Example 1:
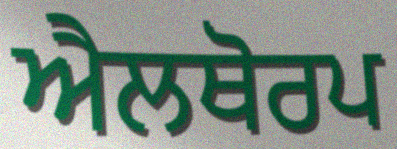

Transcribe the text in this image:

ਐਲਥੋਰਪ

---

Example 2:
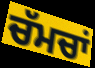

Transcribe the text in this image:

ਚੱਮਚਾਂ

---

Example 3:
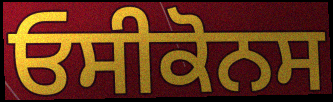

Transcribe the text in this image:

ਓਸੀਕੋਨਸ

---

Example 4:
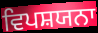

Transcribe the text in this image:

ਵਿਪਸ਼ਯਨਾ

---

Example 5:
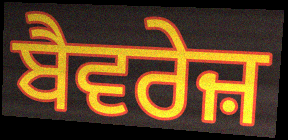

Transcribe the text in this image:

ਬੈਵਰੇਜ਼